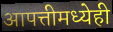
आपत्तीमध्येही